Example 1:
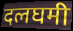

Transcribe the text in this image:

दलघमी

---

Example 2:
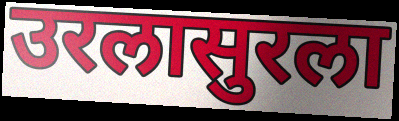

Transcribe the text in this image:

उरलासुरला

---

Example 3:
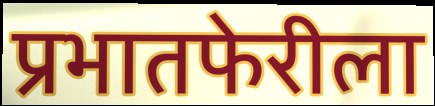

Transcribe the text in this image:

प्रभातफेरीला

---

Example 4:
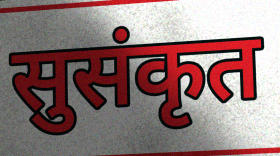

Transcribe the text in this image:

सुसंकृत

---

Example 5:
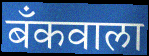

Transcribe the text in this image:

बँकवाला